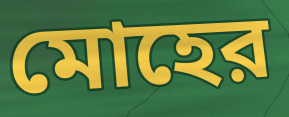
মোহের